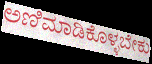
ಅಣಿಮಾಡಿಕೊಳ್ಳಬೇಕು